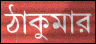
ঠাকুমার